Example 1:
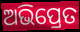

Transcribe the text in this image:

ଅଭିପ୍ରେତ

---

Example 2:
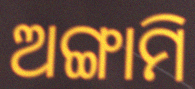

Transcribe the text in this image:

ଅଙ୍ଗାମି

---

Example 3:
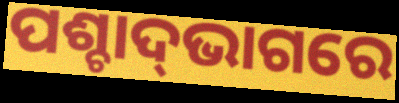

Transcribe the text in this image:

ପଶ୍ଚାଦ୍‌ଭାଗରେ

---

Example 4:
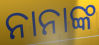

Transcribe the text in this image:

ନାନାଙ୍କ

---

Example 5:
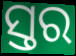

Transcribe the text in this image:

ସ୍ତର